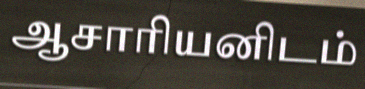
ஆசாரியனிடம்